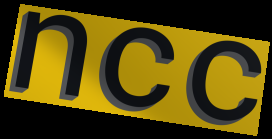
ncc